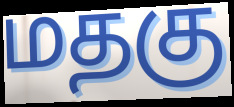
மதகு